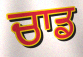
ਚਾਡ